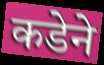
कडेने